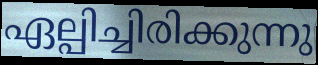
ഏല്പിച്ചിരിക്കുന്നു